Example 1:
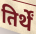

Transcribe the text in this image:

तिर्थें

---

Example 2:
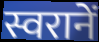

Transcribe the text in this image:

स्वरानें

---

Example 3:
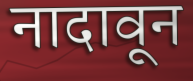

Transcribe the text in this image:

नादावून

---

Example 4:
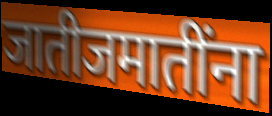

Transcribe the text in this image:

जातीजमातींना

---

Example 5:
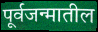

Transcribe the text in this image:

पूर्वजन्मातील